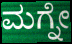
ಮಗ್ನೇ